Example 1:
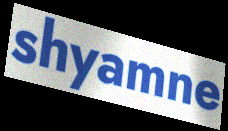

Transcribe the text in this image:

shyamne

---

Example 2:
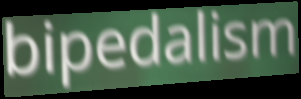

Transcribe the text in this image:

bipedalism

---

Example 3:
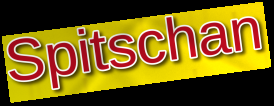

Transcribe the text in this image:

Spitschan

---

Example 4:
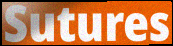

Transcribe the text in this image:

Sutures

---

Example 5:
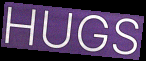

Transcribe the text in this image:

HUGS